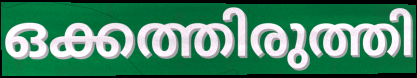
ഒക്കത്തിരുത്തി